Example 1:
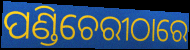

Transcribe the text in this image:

ପଣ୍ଡିଚେରୀଠାରେ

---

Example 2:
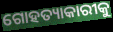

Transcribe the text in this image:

ଗୋହତ୍ୟାକାରୀକୁ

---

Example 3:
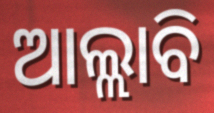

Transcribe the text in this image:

ଆଲ୍ଲାବି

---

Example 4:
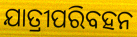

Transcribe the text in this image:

ଯାତ୍ରୀପରିବହନ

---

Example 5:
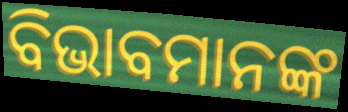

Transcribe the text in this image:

ବିଭାବମାନଙ୍କ